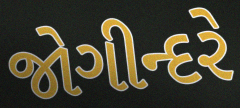
જોગીન્દરે